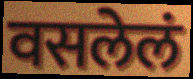
वसलेलं